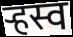
र्‍हस्व